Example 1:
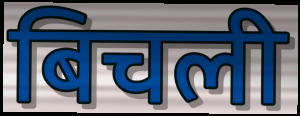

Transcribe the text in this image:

बिचली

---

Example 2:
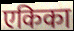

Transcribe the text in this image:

एकिका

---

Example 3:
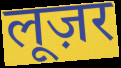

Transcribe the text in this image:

लूज़र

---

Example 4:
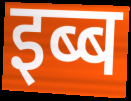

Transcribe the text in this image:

इब्ब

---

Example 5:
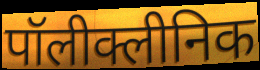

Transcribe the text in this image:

पॉलीक्लीनिक